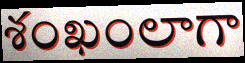
శంఖంలాగా